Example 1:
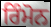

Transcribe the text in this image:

ਰਿੰਮੋਨ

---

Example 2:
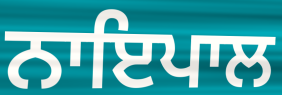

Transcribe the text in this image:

ਨਾਇਪਾਲ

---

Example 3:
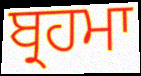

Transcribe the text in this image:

ਬ੍ਰਹਮਾ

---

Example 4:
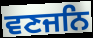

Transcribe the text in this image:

ਵਣਜਨਿ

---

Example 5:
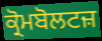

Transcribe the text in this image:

ਕ੍ਰੋਮਬੋਲਟਜ਼